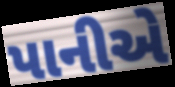
પાનીએ